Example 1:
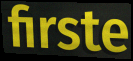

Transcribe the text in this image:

firste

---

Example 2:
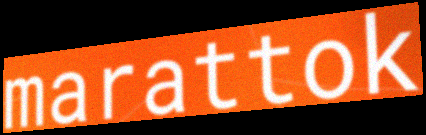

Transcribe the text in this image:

marattok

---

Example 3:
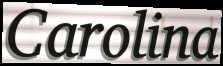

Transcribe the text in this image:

Carolina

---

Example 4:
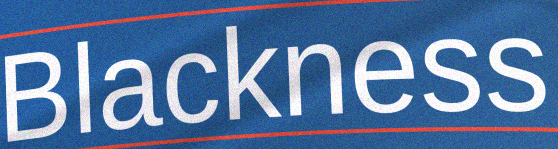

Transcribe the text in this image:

Blackness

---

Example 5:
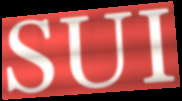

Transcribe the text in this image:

SUI